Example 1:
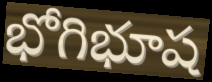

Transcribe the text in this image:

భోగిభూష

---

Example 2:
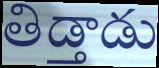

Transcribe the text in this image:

తిడ్తాడు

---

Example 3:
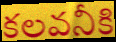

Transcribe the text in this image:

కలవనీకి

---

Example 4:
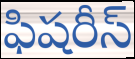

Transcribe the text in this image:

ఫిషరీస్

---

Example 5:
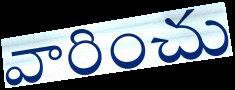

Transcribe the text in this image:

వారించు